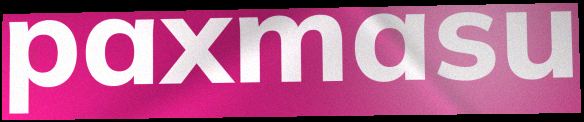
paxmasu